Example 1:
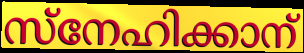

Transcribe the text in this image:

സ്നേഹിക്കാന്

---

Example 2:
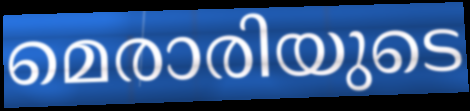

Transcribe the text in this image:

മെരാരിയുടെ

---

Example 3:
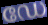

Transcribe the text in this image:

ഡേ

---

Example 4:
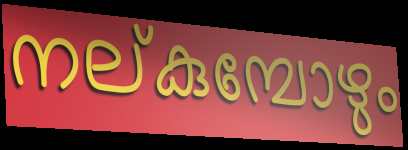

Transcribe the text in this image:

നല്കുമ്പോഴും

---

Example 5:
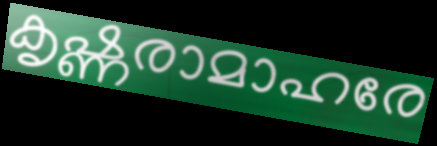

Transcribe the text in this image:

കൃഷ്ണരാമാഹരേ